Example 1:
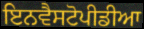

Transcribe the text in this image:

ਇਨਵੈਸਟੋਪੀਡੀਆ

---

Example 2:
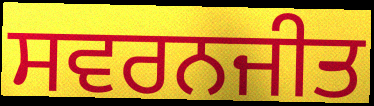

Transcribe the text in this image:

ਸਵਰਨਜੀਤ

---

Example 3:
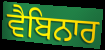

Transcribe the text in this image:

ਵੈਬਿਨਾਰ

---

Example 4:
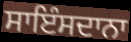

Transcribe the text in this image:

ਸਾਇੰਸਦਾਨਾ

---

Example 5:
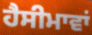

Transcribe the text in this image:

ਹੈਸੀਮਾਵਾਂ